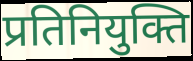
प्रतिनियुक्ति